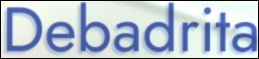
Debadrita